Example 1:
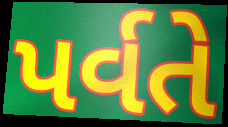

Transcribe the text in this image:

પર્વતે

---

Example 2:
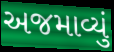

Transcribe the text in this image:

અજમાવ્યું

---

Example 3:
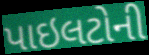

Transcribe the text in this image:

પાઇલટોની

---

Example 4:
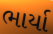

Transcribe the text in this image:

ભાર્યા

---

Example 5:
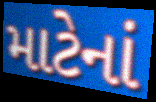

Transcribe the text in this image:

માટેનાં